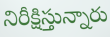
నిరీక్షిస్తున్నారు